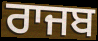
ਰਾਜਬ